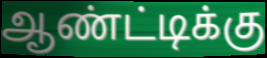
ஆண்ட்டிக்கு